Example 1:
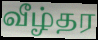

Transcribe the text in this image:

வீழ்தர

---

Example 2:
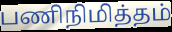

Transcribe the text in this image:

பணிநிமித்தம்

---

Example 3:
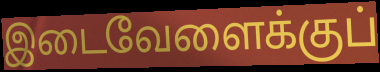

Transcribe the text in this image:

இடைவேளைக்குப்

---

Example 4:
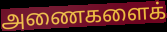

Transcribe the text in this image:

அணைகளைக்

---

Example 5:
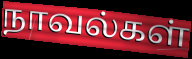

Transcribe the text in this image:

நாவல்கள்